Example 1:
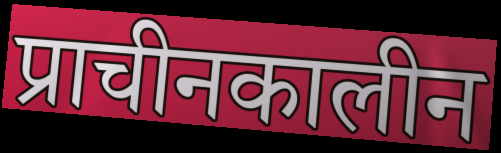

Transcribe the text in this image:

प्राचीनकालीन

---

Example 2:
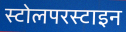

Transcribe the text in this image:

स्टोलपरस्टाइन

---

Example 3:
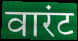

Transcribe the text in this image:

वारंट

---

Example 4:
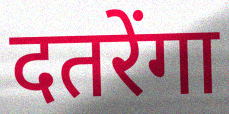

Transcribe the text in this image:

दतरेंगा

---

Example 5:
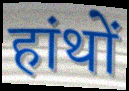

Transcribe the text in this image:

हांथों